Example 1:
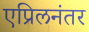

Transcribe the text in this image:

एप्रिलनंतर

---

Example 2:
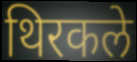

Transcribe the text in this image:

थिरकले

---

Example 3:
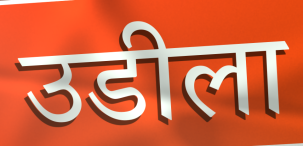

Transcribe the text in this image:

उडीला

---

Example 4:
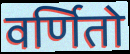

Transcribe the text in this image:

वर्णितो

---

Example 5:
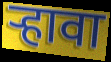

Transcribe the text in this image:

र्‍हावा